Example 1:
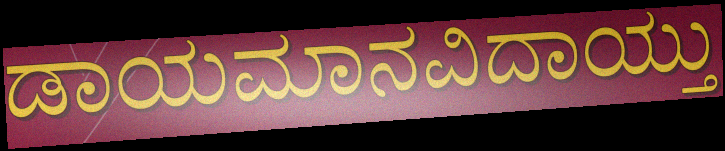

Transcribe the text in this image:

ಡಾಯಮಾನವಿದಾಯ್ತು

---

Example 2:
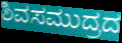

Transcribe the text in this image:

ಶಿವಸಮುದ್ರದ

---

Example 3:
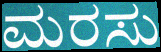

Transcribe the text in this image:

ಮರಸು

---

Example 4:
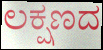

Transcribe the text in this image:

ಲಕ್ಷಣದ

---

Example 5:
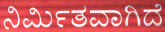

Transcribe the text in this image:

ನಿರ್ಮಿತವಾಗಿದೆ